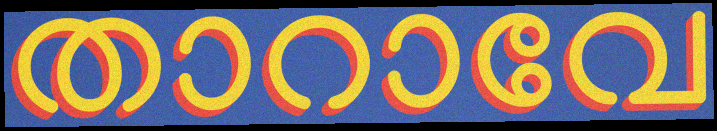
താറാവേ